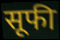
सूफी